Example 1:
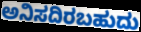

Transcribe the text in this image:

ಅನಿಸದಿರಬಹುದು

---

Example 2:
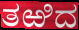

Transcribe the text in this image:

ತಱಿದ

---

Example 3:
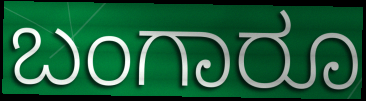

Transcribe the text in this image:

ಬಂಗಾರೂ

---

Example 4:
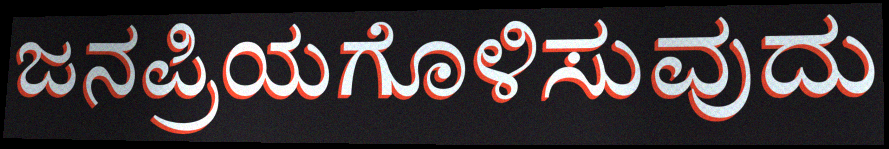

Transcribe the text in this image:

ಜನಪ್ರಿಯಗೊಳಿಸುವುದು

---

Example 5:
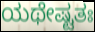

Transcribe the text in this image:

ಯಥೇಷ್ಟತಃ